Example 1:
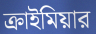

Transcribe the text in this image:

ক্রাইমিয়ার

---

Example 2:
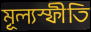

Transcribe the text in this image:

মূল্যস্ফীতি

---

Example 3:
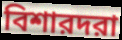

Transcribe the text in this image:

বিশারদরা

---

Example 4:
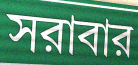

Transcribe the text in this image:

সরাবার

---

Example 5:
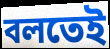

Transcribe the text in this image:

বলতেই